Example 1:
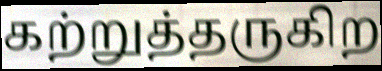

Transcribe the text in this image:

கற்றுத்தருகிற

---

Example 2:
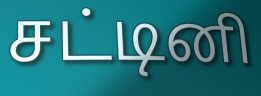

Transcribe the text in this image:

சட்டினி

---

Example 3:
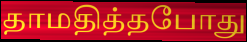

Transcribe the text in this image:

தாமதித்தபோது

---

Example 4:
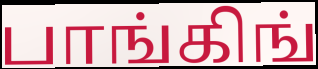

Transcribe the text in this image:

பாங்கிங்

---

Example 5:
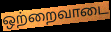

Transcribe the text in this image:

ஒற்றைவாடை